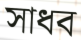
সাধব